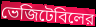
ভেজিটেবিলের